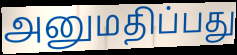
அனுமதிப்பது